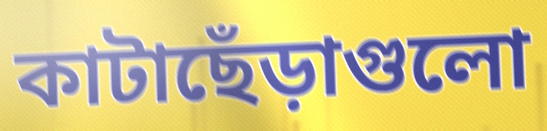
কাটাছেঁড়াগুলো